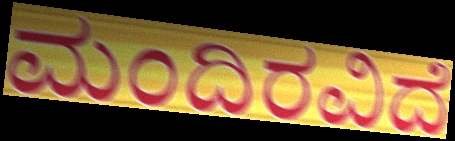
ಮಂದಿರವಿದೆ